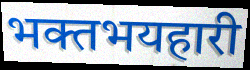
भक्तभयहारी